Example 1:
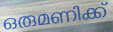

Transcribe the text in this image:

ഒരുമണിക്ക്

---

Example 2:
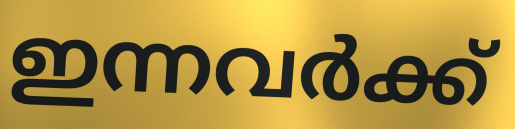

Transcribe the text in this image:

ഇന്നവർക്ക്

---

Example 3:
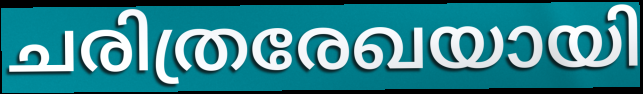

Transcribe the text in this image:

ചരിത്രരേഖയായി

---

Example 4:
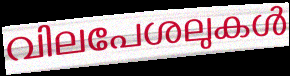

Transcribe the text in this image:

വിലപേശലുകൾ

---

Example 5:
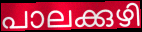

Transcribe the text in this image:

പാലക്കുഴി